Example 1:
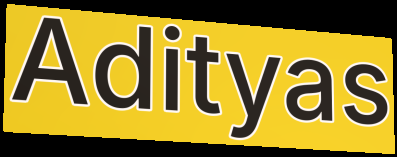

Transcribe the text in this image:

Adityas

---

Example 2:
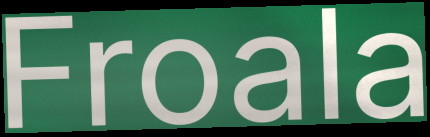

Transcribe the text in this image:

Froala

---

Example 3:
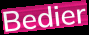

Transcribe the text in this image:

Bedier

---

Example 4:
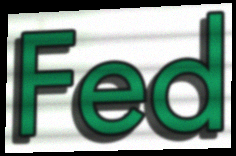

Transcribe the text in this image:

Fed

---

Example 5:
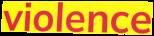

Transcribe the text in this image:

violence